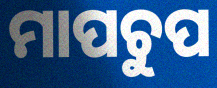
ମାପଚୁପ